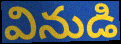
వినుడి